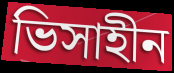
ভিসাহীন